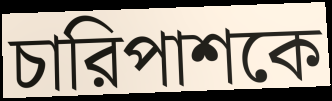
চারিপাশকে